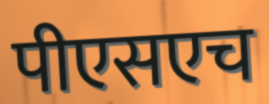
पीएसएच